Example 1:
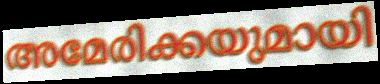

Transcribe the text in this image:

അമേരിക്കയുമായി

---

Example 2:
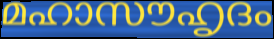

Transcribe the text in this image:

മഹാസൗഹൃദം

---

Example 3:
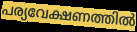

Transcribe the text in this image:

പര്യവേക്ഷണത്തിൽ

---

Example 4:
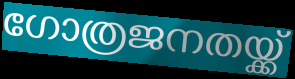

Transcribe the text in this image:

ഗോത്രജനതയ്ക്ക്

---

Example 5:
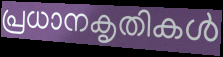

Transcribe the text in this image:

പ്രധാനകൃതികൾ